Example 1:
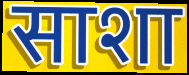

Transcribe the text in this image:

साशा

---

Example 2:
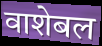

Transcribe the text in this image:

वाशेबल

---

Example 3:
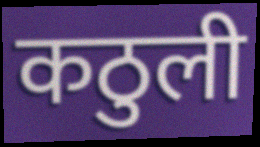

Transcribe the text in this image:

कठुली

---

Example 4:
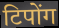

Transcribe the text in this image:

टिपोंग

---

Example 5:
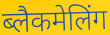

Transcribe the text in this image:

ब्लैकमेलिंग